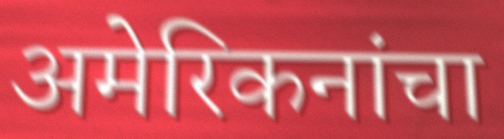
अमेरिकनांचा